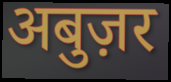
अबुज़र